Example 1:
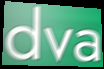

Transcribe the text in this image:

dva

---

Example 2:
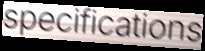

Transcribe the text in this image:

specifications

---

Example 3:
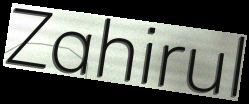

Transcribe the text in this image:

Zahirul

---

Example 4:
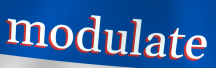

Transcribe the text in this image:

modulate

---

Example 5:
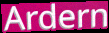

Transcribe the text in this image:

Ardern